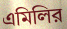
এমিলির